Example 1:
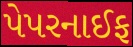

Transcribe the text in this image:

પેપરનાઈફ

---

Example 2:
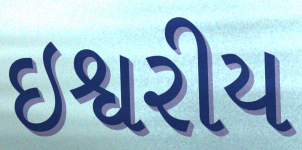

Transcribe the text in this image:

ઇશ્વરીય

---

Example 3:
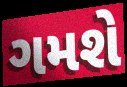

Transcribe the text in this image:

ગમશે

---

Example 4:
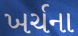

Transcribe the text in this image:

ખર્ચના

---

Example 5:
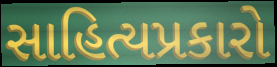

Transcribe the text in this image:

સાહિત્યપ્રકારો